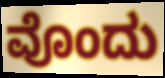
ವೊಂದು